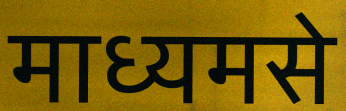
माध्यमसे